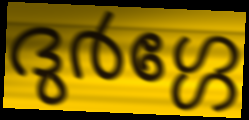
ദുർഗ്ഗേ